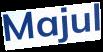
Majul